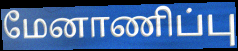
மேனாணிப்பு